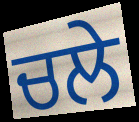
ਚਲੇ